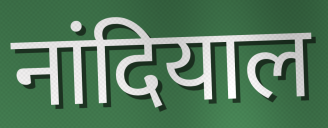
नांदियाल